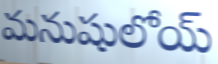
మనుషులోయ్